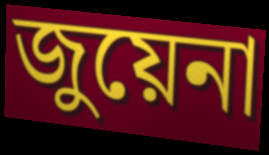
জুয়েনা